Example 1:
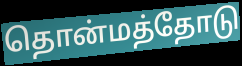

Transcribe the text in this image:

தொன்மத்தோடு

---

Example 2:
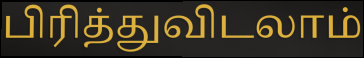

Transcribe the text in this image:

பிரித்துவிடலாம்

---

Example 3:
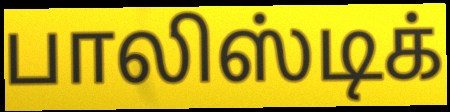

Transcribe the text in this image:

பாலிஸ்டிக்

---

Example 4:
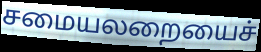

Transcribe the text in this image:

சமையலறையைச்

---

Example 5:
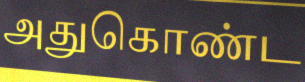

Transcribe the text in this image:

அதுகொண்ட